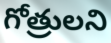
గోత్రులని